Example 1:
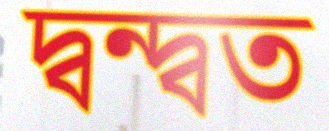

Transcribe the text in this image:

দ্বন্দ্বত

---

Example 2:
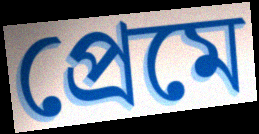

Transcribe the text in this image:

প্ৰেমে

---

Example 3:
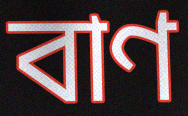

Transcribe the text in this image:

বাণ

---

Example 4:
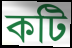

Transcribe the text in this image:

কটি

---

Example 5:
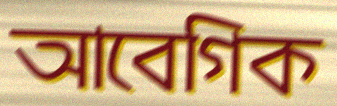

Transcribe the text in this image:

আবেগিক